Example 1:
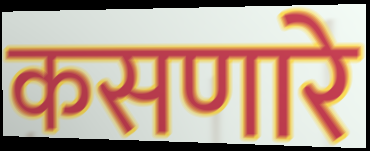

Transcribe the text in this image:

कसणारे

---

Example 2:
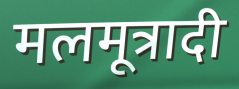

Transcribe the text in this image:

मलमूत्रादी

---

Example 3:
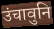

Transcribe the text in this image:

उंचावुनि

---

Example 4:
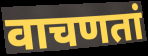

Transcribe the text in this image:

वाचणतां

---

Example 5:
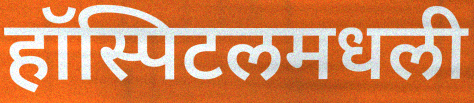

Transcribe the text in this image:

हॉस्पिटलमधली